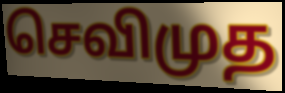
செவிமுத